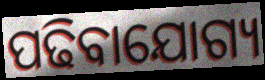
ପଢିବାଯୋଗ୍ୟ